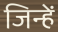
जिन्‍हें